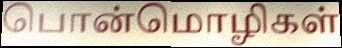
பொன்மொழிகள்